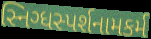
સ્નિગ્ધસ્પર્શનામકર્મ